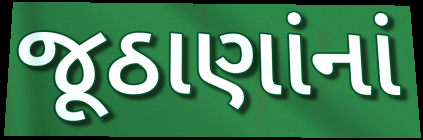
જૂઠાણાંનાં